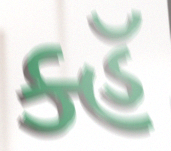
ક્હૅ